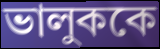
ভালুককে